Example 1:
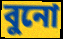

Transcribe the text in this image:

বুনো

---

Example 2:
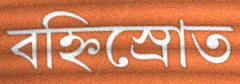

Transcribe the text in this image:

বহ্নিস্রোত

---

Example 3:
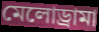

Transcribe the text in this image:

মেলোড্রামা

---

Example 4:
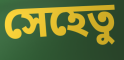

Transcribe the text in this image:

সেহেতু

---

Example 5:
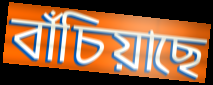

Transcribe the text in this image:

বাঁচিয়াছে